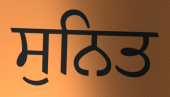
ਸੁਨਿਤ